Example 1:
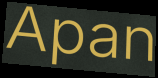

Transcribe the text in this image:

Apan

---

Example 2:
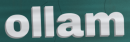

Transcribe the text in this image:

ollam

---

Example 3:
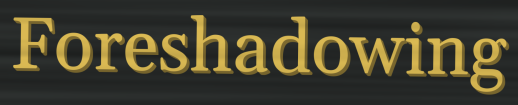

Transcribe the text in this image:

Foreshadowing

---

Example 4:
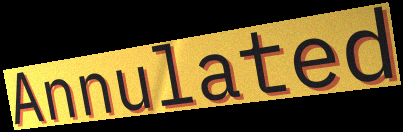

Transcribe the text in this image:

Annulated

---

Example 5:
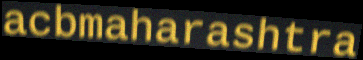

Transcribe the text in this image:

acbmaharashtra